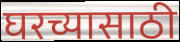
घरच्यासाठी